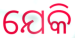
ଯେକି